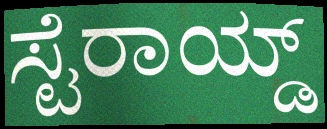
ಸ್ಟೆರಾಯ್ಡ್